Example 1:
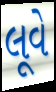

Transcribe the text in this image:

લૂવે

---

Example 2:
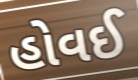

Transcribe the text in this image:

હોવઈ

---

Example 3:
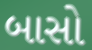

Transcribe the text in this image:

બાસો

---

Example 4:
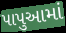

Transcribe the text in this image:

પાપુઆમાં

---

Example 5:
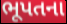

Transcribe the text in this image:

ભૂપતના